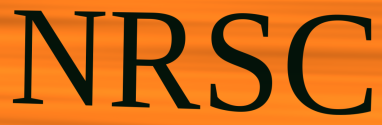
NRSC